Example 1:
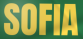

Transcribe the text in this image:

SOFIA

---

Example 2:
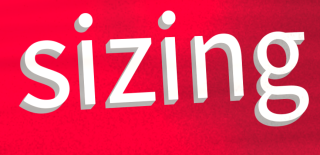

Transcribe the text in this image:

sizing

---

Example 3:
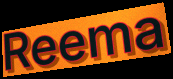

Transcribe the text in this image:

Reema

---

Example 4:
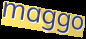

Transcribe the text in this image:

maggo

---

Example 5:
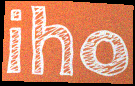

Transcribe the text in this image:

iho